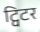
ट्विटर